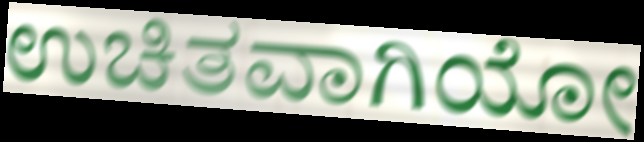
ಉಚಿತವಾಗಿಯೋ